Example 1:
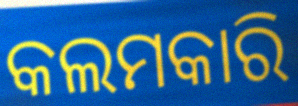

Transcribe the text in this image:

କଲମକାରି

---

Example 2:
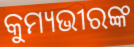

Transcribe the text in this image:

କୁମ୍ୟଭୀରଙ୍କ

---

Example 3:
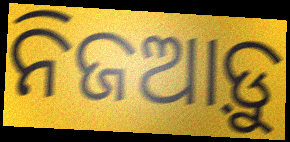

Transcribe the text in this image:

ନିଜଆଡ଼ୁ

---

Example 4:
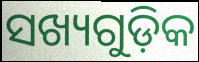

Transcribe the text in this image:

ସଖ୍ୟଗୁଡ଼ିକ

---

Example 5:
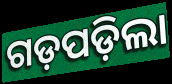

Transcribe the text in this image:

ଗଡ଼ପଡ଼ିଲା